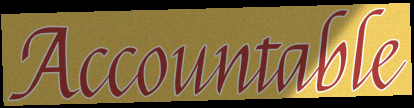
Accountable